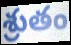
శ్రుతం